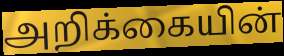
அறிக்கையின்